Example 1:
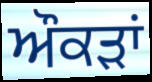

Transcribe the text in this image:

ਔਕਡ਼ਾਂ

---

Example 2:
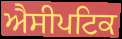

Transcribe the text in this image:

ਐਸੀਪਟਿਕ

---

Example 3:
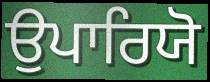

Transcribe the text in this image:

ਉਪਾਰਿਯੋ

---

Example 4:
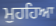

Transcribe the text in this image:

ਮੁਹਹਿਆ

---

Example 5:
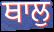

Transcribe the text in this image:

ਥਾਲੁ